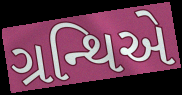
ગ્રન્થિએ